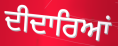
ਦੀਦਾਰਿਆਂ